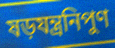
ষড়যন্ত্রনিপুণ